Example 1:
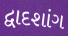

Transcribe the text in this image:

દ્વાદશાંગ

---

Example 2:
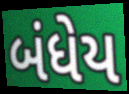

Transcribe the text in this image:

બંધેય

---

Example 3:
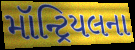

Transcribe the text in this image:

મૉન્ટ્રિયલના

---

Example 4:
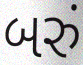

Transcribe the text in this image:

બરું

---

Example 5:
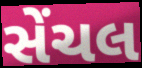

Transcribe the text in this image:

સેંચલ